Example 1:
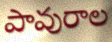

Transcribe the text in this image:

పావురాల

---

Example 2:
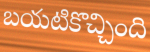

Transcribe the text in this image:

బయటికొచ్చింది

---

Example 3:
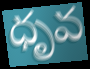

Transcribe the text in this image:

ధృవ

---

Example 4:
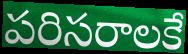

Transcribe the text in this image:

పరిసరాలకే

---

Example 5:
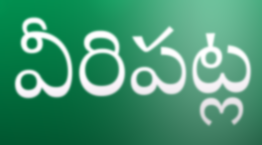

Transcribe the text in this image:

వీరిపట్ల